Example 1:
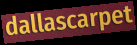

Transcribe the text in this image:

dallascarpet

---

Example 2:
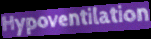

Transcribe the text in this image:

Hypoventilation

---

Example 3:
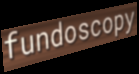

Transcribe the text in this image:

fundoscopy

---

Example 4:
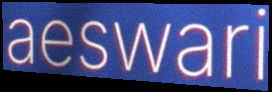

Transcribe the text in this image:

aeswari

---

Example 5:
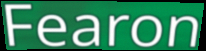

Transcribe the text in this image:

Fearon